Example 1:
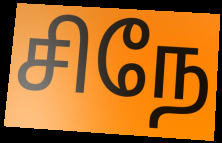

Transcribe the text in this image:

சிநே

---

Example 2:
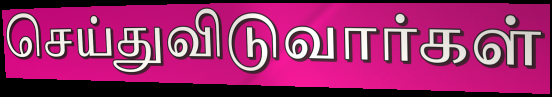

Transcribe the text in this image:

செய்துவிடுவார்கள்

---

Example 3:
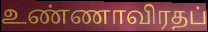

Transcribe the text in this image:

உண்ணாவிரதப்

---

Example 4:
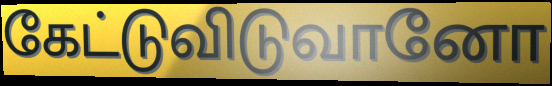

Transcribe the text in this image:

கேட்டுவிடுவானோ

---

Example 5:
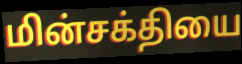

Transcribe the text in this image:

மின்சக்தியை